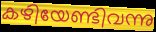
കഴിയേണ്ടിവന്നു